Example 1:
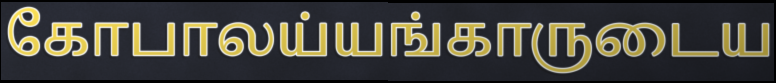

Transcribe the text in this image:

கோபாலய்யங்காருடைய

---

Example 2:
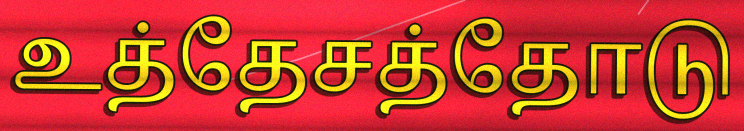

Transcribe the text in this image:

உத்தேசத்தோடு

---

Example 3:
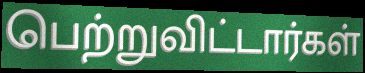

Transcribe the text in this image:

பெற்றுவிட்டார்கள்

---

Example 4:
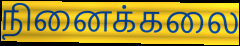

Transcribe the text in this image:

நினைக்கலை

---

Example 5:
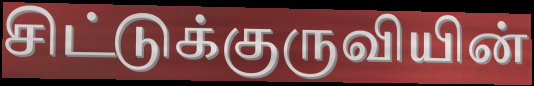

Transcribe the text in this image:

சிட்டுக்குருவியின்